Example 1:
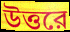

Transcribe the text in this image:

উত্তরে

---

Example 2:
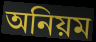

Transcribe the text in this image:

অনিয়ম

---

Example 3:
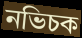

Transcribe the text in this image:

নভিচক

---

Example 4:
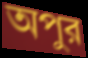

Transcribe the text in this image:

অপুর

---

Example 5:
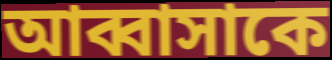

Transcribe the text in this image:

আব্বাসাকে